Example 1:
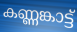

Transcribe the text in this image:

കണ്ണങ്കാട്ട്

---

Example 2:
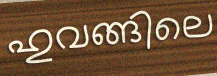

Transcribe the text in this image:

ഹുവങ്ങിലെ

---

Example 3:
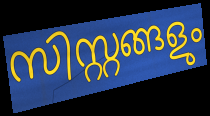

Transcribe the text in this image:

സിസ്റ്റങ്ങളും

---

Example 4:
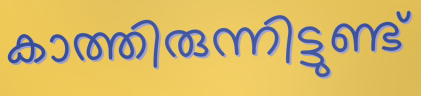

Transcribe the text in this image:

കാത്തിരുന്നിട്ടുണ്ട്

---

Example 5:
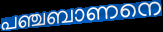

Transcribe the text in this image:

പഞ്ചബാണനെ